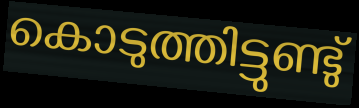
കൊടുത്തിട്ടുണ്ടു്